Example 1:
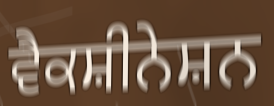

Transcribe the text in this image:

ਵੈਕਸ਼ੀਨੇਸ਼ਨ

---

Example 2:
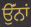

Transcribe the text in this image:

ਉਂੱਨਾਂ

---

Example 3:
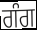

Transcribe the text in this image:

ਗੰਗ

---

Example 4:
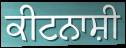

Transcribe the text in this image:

ਕੀਟਨਾਸ਼ੀ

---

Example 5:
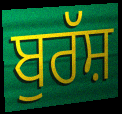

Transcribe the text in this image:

ਬੁਰੱਸ਼